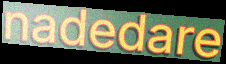
nadedare